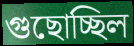
গুছোচ্ছিল